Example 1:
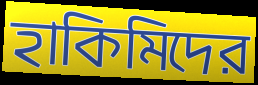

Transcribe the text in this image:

হাকিমিদের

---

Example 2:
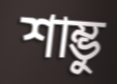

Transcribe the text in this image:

শাম্ভু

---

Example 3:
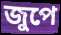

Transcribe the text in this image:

জুপে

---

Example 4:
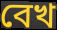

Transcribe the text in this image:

বেখ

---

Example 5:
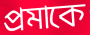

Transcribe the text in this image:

প্রমাকে